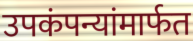
उपकंपन्यांमार्फत